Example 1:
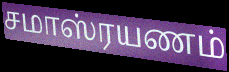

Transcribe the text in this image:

சமாஸ்ரயணம்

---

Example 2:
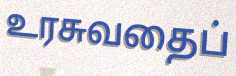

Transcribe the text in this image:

உரசுவதைப்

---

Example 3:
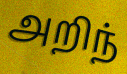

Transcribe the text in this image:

அறிந்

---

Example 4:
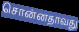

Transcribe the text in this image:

சொன்னதாவது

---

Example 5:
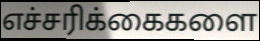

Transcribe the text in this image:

எச்சரிக்கைகளை